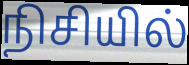
நிசியில்